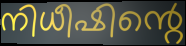
നിധീഷിന്റെ